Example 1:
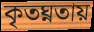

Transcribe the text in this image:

কৃতঘ্নতায়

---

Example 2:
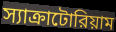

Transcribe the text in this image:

স্যাক্রাটোরিয়াম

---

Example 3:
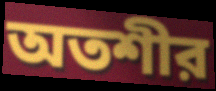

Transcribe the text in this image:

অতশীর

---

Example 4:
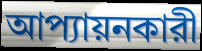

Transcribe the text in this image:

আপ্যায়নকারী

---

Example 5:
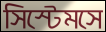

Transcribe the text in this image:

সিস্টেমসে